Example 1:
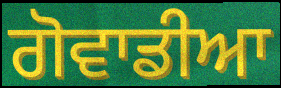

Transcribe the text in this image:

ਗੋਵਾਡੀਆ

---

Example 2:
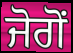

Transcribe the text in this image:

ਜੋਗੋਂ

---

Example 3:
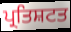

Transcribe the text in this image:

ਪ੍ਰਤਿਸ਼ਟਤ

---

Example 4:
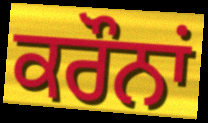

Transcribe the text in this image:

ਕਰੌਨਾਂ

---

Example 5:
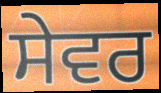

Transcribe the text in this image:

ਸੇਵਰ